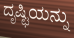
ದೃಷ್ಟಿಯನ್ನು